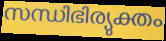
സന്ധിഭിര്യുക്തം